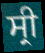
ਸ੍ਰੀ